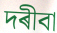
দৰীবা